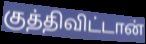
குத்திவிட்டான்